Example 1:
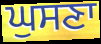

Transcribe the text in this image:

ਘੁਸਣਾ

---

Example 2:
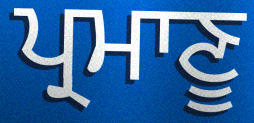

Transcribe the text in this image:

ਪ੍ਰਮਾਣੂ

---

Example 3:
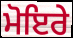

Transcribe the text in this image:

ਮੋਇਰੇ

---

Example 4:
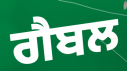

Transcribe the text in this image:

ਗੈਬਲ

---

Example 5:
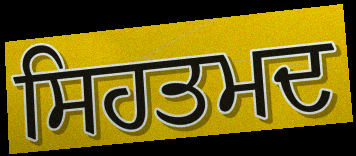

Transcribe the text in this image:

ਸਿਹਤਮਦ